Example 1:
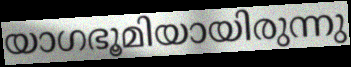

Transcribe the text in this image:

യാഗഭൂമിയായിരുന്നു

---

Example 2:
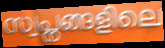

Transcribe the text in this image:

സ്വപ്നങ്ങളിലെ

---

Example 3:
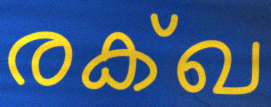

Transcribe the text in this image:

രക്ഖ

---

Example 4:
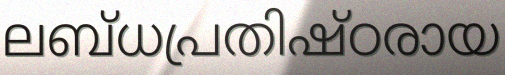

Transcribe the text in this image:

ലബ്ധപ്രതിഷ്ഠരായ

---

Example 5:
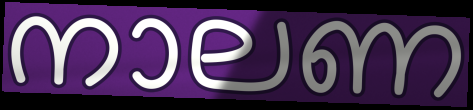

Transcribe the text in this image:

നാലണ